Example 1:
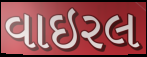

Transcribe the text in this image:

વાઇરલ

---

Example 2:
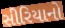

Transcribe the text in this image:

સીરિયાનો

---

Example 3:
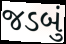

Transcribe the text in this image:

જડબું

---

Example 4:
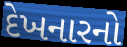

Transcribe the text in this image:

દેખનારનો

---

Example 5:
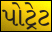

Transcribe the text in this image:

પોટ્રેટ